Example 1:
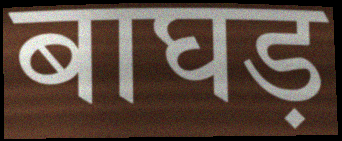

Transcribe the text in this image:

बाघड़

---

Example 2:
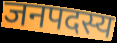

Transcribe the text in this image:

जनपदस्य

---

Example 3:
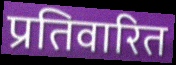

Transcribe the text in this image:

प्रतिवारित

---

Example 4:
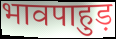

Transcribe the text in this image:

भावपाहुड़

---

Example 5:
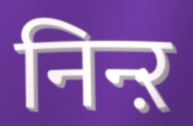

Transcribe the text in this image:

निन्ऱ